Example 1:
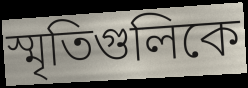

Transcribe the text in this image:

স্মৃতিগুলিকে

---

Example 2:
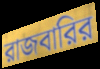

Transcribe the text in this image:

রাজবারির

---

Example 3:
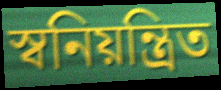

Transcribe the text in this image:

স্বনিয়ন্ত্রিত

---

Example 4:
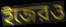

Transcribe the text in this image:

ইজেরও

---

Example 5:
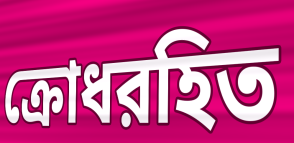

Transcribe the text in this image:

ক্রোধরহিত